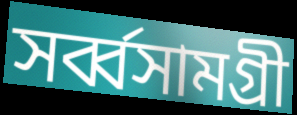
সর্ব্বসামগ্রী